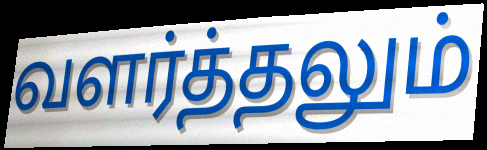
வளர்த்தலும்